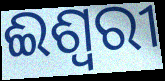
ଈଶ୍ଵରୀ